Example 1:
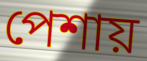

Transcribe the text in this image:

পেশায়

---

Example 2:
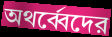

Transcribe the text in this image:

অথর্ব্বেদের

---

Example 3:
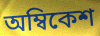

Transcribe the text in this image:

অম্বিকেশ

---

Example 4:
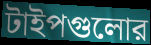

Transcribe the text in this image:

টাইপগুলোর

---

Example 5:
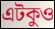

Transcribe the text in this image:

এটকুও